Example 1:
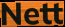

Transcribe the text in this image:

Nett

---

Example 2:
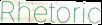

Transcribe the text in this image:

Rhetoric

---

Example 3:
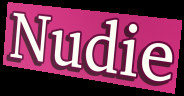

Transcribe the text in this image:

Nudie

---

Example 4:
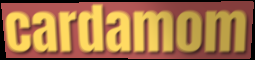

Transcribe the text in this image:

cardamom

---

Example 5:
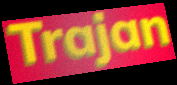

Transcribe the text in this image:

Trajan